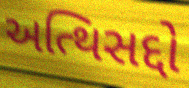
અત્થિસદ્દો